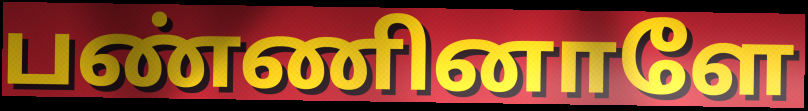
பண்ணினாளே